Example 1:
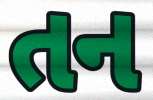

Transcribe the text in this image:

તન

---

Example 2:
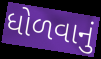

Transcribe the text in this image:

ધોળવાનું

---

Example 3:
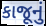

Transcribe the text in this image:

કાજૂનું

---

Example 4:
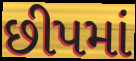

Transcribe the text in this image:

છીપમાં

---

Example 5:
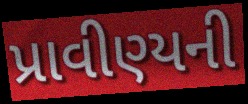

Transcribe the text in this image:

પ્રાવીણ્યની